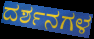
ದರ್ಶನಗಳ